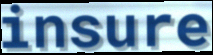
insure